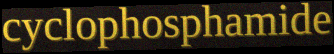
cyclophosphamide